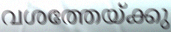
വശത്തേയ്ക്കു